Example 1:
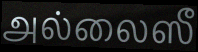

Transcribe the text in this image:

அல்லைஸீ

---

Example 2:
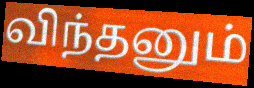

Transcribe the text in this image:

விந்தனும்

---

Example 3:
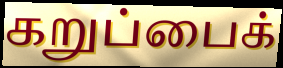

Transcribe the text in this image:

கறுப்பைக்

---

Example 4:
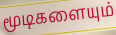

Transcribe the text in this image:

மூடிகளையும்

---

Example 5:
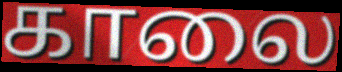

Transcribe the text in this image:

காலை